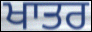
ਖਾਤਰ